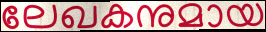
ലേഖകനുമായ